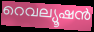
റെവല്യൂഷൻ